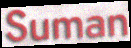
Suman